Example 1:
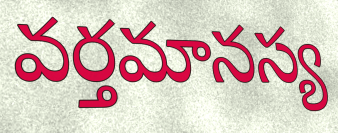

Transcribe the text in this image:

వర్తమానస్య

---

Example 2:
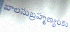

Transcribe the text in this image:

బాలసుబ్రహ్మణ్యంకు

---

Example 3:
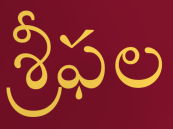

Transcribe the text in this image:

శ్రీఫల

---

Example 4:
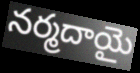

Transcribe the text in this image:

నర్మదాయై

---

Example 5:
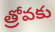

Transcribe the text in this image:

త్రోవకు